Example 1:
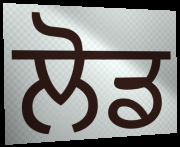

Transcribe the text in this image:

ਲੋਡ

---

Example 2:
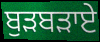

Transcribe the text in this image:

ਬੁੜਬੜਾਏ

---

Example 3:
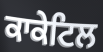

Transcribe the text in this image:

ਕਾਕੇਟਿਲ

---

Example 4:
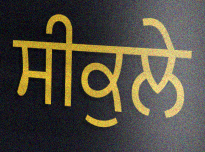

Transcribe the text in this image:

ਸੀਕੁਲੇ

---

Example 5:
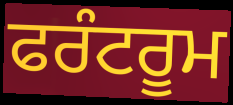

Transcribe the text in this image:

ਫਰੰਟਰੂਮ